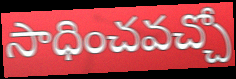
సాధించవచ్చో